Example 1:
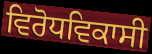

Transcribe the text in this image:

ਵਿਰੋਧਵਿਕਾਸੀ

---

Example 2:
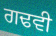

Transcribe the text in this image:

ਗਢਵੀ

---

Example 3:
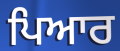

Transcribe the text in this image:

ਪਿਆਰ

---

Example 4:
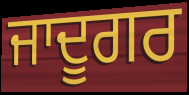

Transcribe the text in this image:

ਜਾਦੂਗਰ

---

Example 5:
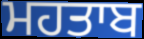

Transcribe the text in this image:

ਮਹਤਾਬ